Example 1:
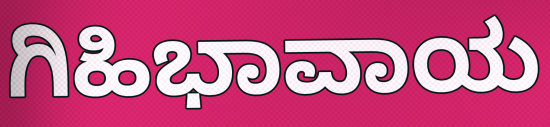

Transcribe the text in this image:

ಗಿಹಿಭಾವಾಯ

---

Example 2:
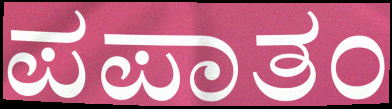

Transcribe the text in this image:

ಪಪಾತಂ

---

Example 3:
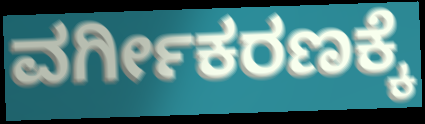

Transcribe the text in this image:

ವರ್ಗೀಕರಣಕ್ಕೆ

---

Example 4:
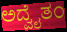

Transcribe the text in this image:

ಅದ್ವೈತಂ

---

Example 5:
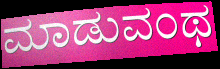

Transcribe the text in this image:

ಮಾಡುವಂಥ